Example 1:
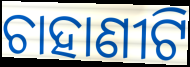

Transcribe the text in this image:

ଚାହାଣୀଟି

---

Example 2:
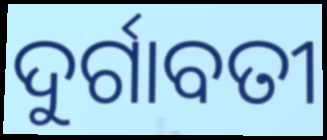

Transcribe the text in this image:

ଦୁର୍ଗାବତୀ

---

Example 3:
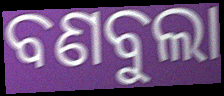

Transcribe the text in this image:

ବଣବୁଲା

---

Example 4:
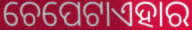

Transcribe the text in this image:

ଚେପେଟାଏହାର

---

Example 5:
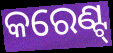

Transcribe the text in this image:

କରେଣ୍ଟ୍